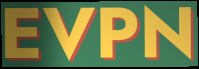
EVPN